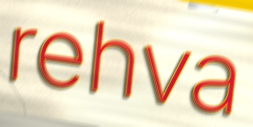
rehva